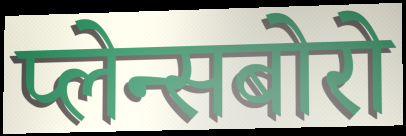
प्लेन्सबोरो